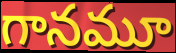
గానమూ